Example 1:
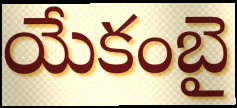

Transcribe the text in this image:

యేకంబై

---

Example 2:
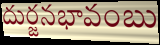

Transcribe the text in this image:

దుర్జనభావంబు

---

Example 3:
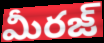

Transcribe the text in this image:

మీరజ్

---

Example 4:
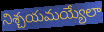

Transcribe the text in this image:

నిశ్చయమయ్యేలా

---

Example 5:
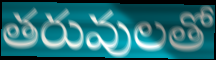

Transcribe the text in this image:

తరువులతో